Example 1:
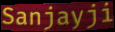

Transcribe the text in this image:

Sanjayji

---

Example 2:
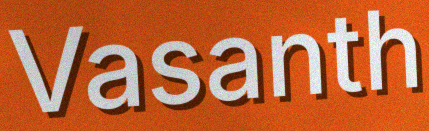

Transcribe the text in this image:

Vasanth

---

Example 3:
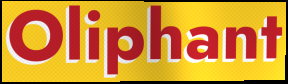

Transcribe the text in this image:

Oliphant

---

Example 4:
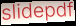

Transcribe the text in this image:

slidepdf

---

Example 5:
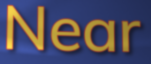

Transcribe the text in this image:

Near